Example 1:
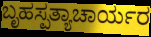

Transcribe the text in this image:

ಬೃಹಸ್ಪತ್ಯಾಚಾರ್ಯರ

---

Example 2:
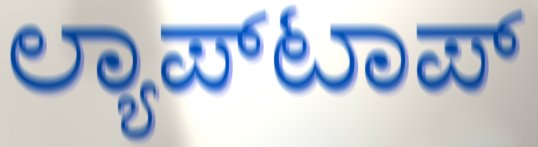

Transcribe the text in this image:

ಲ್ಯಾಪ್‍ಟಾಪ್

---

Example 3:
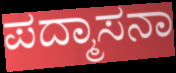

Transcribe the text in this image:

ಪದ್ಮಾಸನಾ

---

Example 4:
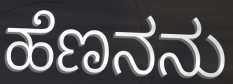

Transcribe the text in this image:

ಹೆಣನನು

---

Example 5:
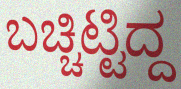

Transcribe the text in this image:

ಬಚ್ಚಿಟ್ಟಿದ್ದ